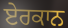
ਏਰਕਾਨ